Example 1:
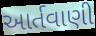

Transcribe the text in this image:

આર્તવાણી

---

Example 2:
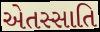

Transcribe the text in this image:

એતસ્સાતિ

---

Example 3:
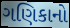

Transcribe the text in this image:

ગણિકાનો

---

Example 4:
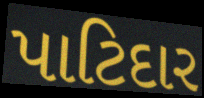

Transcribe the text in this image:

પાટિદાર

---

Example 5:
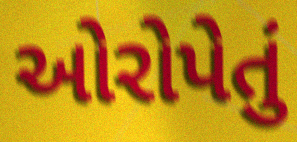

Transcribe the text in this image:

ઓરોપેતું